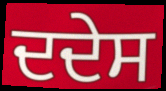
ਦਦੇਸ